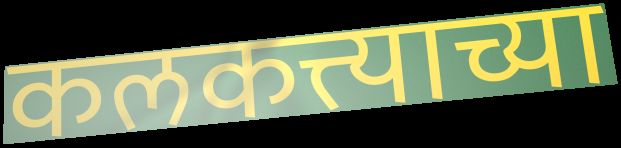
कलकत्त्याच्या